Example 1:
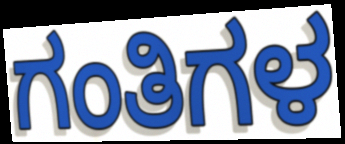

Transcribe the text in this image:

ಗಂತಿಗಳ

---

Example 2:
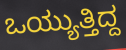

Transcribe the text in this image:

ಒಯ್ಯುತ್ತಿದ್ದ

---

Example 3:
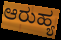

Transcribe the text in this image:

ಆರುಹ್ಯ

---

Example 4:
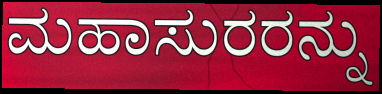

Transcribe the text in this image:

ಮಹಾಸುರರನ್ನು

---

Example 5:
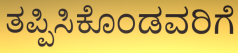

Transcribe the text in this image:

ತಪ್ಪಿಸಿಕೊಂಡವರಿಗೆ